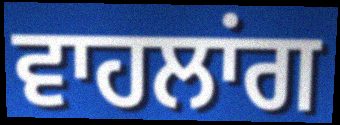
ਵਾਹਲਾਂਗ